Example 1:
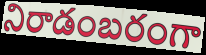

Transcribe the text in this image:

నిరాడంబరంగా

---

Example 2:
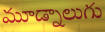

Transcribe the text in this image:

మూడ్నాలుగు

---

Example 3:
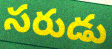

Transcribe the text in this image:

సరుడు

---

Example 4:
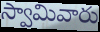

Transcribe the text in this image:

స్వామివారు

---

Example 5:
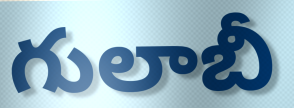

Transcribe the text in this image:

గులాబీ